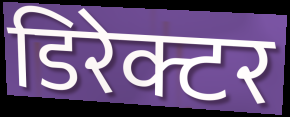
डिरेक्टर